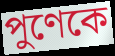
পুণেকে